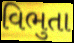
વિભુતા